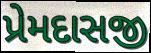
પ્રેમદાસજી